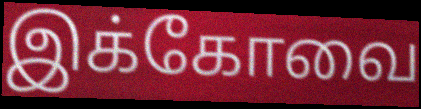
இக்கோவை